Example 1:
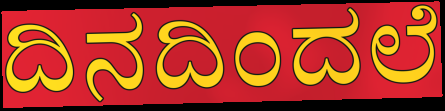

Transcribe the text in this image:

ದಿನದಿಂದಲೆ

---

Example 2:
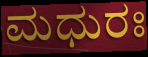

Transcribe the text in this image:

ಮಧುರಃ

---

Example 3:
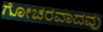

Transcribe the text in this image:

ಗೋಚರವಾದವು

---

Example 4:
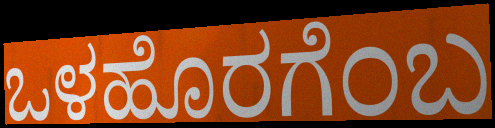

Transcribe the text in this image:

ಒಳಹೊರಗೆಂಬ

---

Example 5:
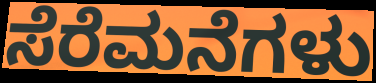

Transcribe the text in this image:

ಸೆರೆಮನೆಗಳು